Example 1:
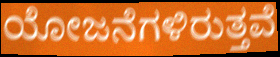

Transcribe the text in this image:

ಯೋಜನೆಗಳಿರುತ್ತವೆ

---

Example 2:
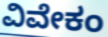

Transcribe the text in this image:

ವಿವೇಕಂ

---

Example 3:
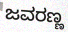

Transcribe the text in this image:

ಜವರಣ್ಣ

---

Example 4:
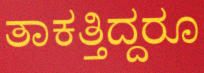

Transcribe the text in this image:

ತಾಕತ್ತಿದ್ದರೂ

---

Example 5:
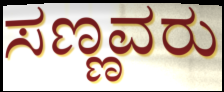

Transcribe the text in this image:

ಸಣ್ಣವರು